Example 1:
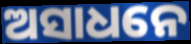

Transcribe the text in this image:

ଅସାଧନେ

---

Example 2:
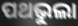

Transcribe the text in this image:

ପଥଭୁଲା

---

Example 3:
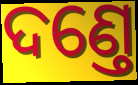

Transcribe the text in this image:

ଦଣ୍ତେ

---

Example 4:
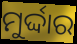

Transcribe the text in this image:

ମୁର୍ଦ୍ଦାର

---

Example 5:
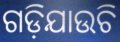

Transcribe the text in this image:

ଗଡ଼ିଯାଉଚି